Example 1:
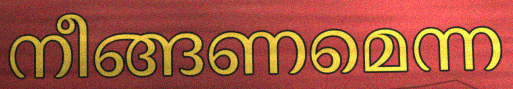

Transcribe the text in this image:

നീങ്ങണമെന്ന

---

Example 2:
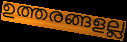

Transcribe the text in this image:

ഉത്തരങ്ങളല്ല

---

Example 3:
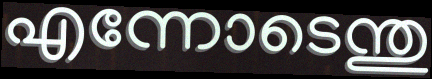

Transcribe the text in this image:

എന്നോടെന്തു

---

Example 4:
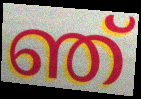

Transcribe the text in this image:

ഞ്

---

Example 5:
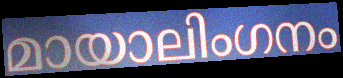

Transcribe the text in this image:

മായാലിംഗനം